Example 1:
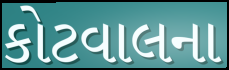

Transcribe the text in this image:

કોટવાલના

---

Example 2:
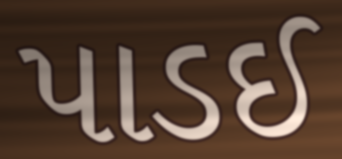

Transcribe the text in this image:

પાડઈ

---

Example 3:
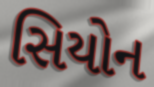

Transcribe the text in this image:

સિયોન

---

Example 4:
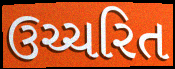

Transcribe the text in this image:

ઉચ્ચરિત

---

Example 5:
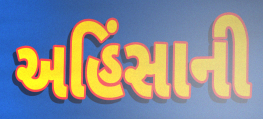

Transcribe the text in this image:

અહિંસાની